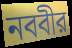
নববীর